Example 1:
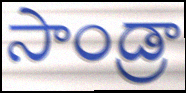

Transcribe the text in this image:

సాండ్రా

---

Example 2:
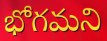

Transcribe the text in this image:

భోగమని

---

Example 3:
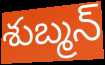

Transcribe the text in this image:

శుబ్మన్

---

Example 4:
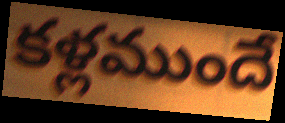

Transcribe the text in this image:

కళ్లముందే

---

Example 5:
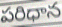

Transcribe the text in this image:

పరిధాన